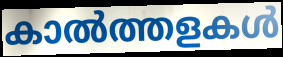
കാൽത്തളകൾ